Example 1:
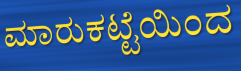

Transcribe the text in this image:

ಮಾರುಕಟ್ಟೆಯಿಂದ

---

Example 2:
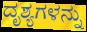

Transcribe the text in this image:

ದೃಶ್ಯಗಳನ್ನು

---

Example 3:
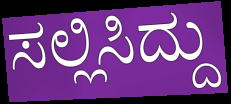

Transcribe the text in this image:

ಸಲ್ಲಿಸಿದ್ದು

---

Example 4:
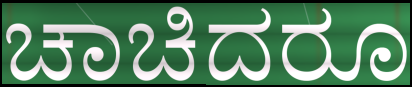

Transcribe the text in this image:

ಚಾಚಿದರೂ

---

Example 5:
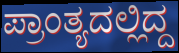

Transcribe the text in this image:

ಪ್ರಾಂತ್ಯದಲ್ಲಿದ್ದ